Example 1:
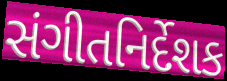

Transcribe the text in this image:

સંગીતનિર્દેશક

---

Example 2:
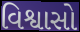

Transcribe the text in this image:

વિશ્વાસો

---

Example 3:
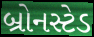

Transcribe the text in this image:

બ્રોનસ્ટેડ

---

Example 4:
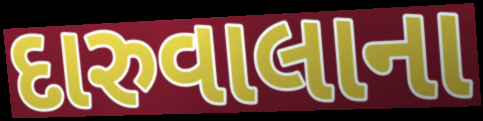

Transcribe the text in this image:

દારુવાલાના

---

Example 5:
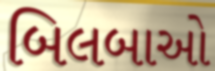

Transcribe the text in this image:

બિલબાઓ